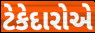
ટેકેદારોએ